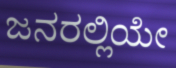
ಜನರಲ್ಲಿಯೇ